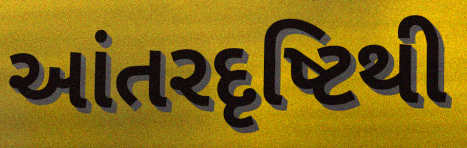
આંતરદૃષ્ટિથી